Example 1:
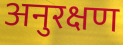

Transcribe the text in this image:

अनुरक्षण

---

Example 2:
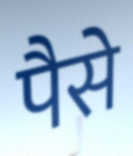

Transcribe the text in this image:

पैसे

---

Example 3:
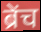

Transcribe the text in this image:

ब्रेंच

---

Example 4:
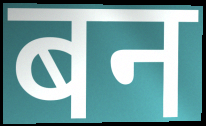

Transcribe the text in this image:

बन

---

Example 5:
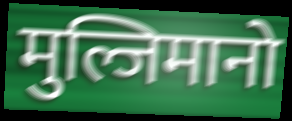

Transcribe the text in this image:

मुल्जिमानो